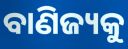
ବାଣିଜ୍ୟକୁ